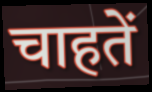
चाहतें